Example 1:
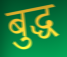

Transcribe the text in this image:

बुद्ध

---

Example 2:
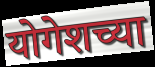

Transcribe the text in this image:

योगेशच्या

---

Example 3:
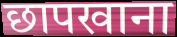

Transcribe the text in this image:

छापखाना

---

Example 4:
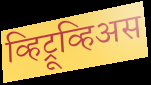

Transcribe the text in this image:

व्हिट्रूव्हिअस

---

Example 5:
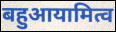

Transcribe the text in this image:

बहुआयामित्व